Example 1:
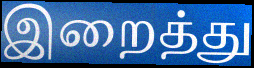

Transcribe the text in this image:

இறைத்து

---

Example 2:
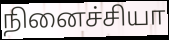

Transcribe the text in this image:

நினைச்சியா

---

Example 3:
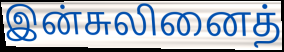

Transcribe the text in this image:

இன்சுலினைத்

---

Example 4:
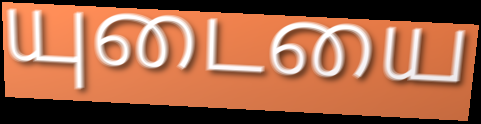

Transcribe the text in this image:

யுடையை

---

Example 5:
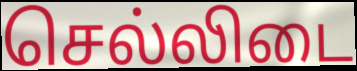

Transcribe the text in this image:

செல்லிடை